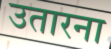
उतारना